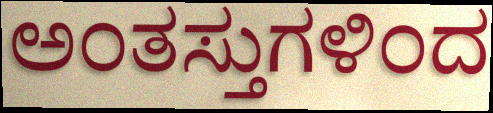
ಅಂತಸ್ತುಗಳಿಂದ